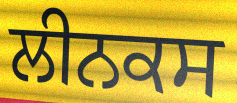
ਲੀਨਕਸ